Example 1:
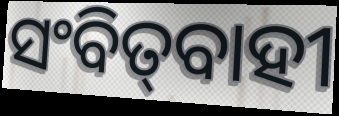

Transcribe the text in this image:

ସଂବିତ୍‌ବାହୀ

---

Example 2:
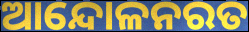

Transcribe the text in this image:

ଆନ୍ଦୋଳନରତ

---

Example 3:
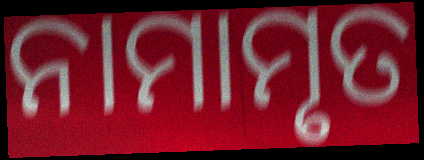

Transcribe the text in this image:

ନାମାମୃତ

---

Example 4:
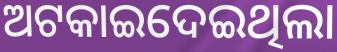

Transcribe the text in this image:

ଅଟକାଇଦେଇଥିଲା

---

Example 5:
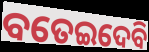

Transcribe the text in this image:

ବତେଇଦେବି